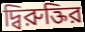
দ্বিরুক্তির